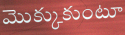
మొక్కుకుంటూ